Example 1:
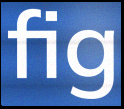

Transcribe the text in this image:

fig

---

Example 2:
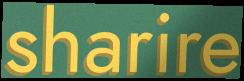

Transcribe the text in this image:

sharire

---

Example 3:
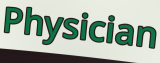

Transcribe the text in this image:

Physician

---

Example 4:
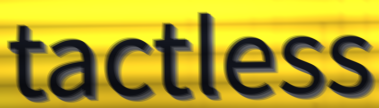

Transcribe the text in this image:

tactless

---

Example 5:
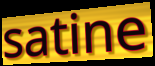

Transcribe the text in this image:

satine